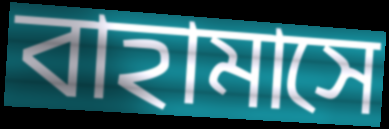
বাহামাসে